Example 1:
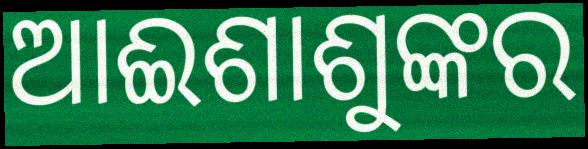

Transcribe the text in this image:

ଆଈଶାଶୁଙ୍କର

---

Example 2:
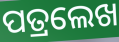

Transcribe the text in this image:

ପତ୍ରଲେଖ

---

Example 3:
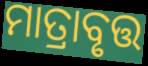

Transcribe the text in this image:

ମାତ୍ରାବୃତ୍ତ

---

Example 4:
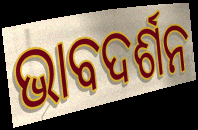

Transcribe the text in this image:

ଭାବଦର୍ଶନ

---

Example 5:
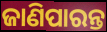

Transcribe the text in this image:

ଜାଣିପାରନ୍ତ